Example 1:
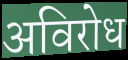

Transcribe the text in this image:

अविरोध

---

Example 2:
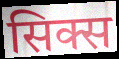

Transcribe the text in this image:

सिक्स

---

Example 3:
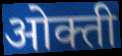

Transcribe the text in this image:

ओक्ती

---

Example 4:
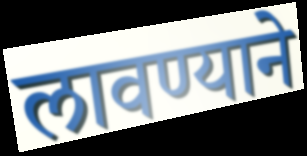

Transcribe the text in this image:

लावण्याने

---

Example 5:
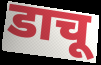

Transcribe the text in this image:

डाचू